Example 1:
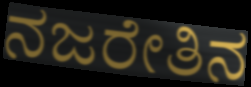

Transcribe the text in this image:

ನಜರೇತಿನ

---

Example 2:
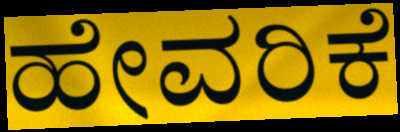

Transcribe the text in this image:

ಹೇವರಿಕೆ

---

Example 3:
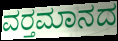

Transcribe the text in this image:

ವರ‍್ತಮಾನದ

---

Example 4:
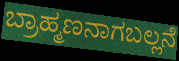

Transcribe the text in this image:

ಬ್ರಾಹ್ಮಣನಾಗಬಲ್ಲನೆ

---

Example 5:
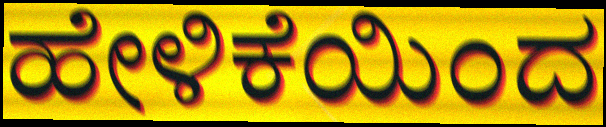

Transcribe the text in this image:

ಹೇಳಿಕೆಯಿಂದ